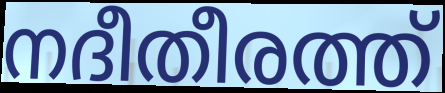
നദീതീരത്ത്